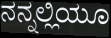
ನನ್ನಲ್ಲಿಯೂ